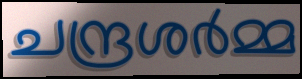
ചന്ദ്രശർമ്മ